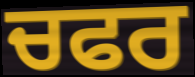
ਚਫਰ